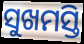
ସୁଖମସ୍ତି